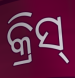
କ୍ରିସ୍